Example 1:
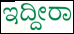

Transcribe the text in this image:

ಇದ್ದೀರಾ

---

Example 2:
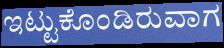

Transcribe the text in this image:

ಇಟ್ಟುಕೊಂಡಿರುವಾಗ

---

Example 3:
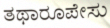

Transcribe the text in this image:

ತಥಾರೂಪೇಸು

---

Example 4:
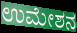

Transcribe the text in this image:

ಉಮೇಶನ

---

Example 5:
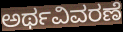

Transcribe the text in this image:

ಅರ್ಥವಿವರಣೆ